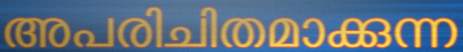
അപരിചിതമാക്കുന്ന